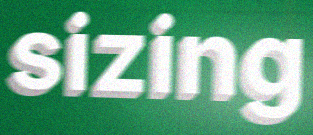
sizing